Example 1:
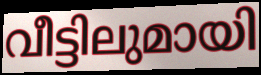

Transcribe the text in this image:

വീട്ടിലുമായി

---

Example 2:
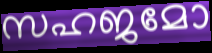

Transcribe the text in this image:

സഹജമോ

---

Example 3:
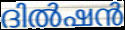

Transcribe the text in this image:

ദിൽഷൻ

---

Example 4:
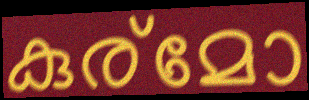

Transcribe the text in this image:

കുര്മോ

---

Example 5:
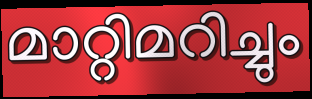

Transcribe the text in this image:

മാറ്റിമറിച്ചും